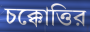
চক্কোত্তির